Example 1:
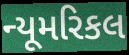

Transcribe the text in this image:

ન્યૂમરિકલ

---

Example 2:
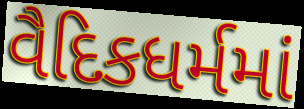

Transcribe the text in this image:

વૈદિકધર્મમાં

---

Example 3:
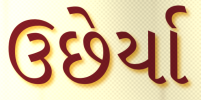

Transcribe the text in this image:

ઉછેર્યા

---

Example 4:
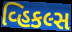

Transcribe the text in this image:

વ્હિકલ્સ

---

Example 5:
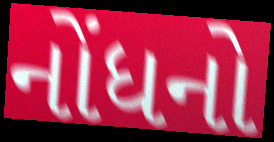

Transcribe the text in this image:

નોંધનો